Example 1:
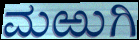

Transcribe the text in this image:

ಮಱುಗಿ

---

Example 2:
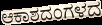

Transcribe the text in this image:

ಆಕಾಶದಂಗಳದ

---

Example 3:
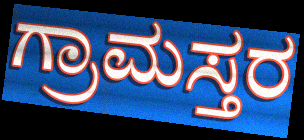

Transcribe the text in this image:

ಗ್ರಾಮಸ್ತರ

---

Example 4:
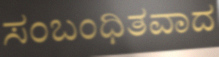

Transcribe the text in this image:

ಸಂಬಂಧಿತವಾದ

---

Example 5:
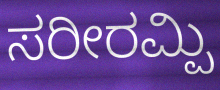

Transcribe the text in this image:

ಸರೀರಮ್ಪಿ